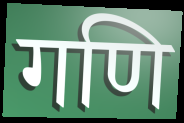
गणि